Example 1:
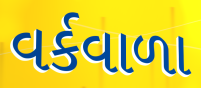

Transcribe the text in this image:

વર્કવાળા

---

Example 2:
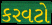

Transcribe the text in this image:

કરવટો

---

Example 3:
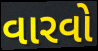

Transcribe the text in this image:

વારવો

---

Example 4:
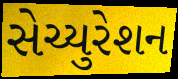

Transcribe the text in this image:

સેચ્યુરેશન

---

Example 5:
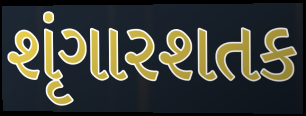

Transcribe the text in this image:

શૃંગારશતક